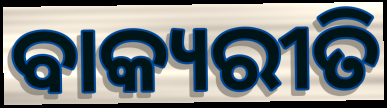
ବାକ୍ୟରୀତି